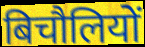
बिचौलियों